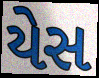
યેસ